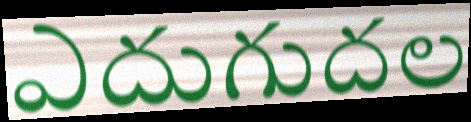
ఎదుగుదల